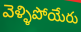
వెళ్ళిపోయేరు